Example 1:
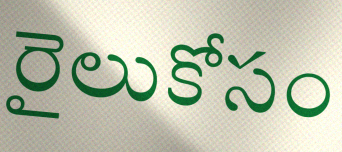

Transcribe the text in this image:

రైలుకోసం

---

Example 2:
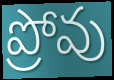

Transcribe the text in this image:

ప్రోవు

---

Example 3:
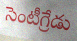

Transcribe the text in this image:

సెంటీగ్రేడు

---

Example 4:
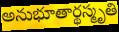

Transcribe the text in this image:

అనుభూతార్థస్మృతి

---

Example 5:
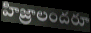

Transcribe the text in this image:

హిజ్రాలందరూ